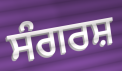
ਸੰਗਰਸ਼